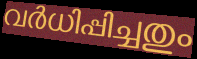
വർധിപ്പിച്ചതും